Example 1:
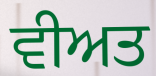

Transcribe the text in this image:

ਵੀਅਤ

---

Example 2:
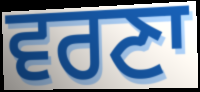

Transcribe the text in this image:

ਵਰਣਾ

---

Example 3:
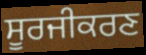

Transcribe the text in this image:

ਸੂਰਜੀਕਰਣ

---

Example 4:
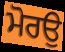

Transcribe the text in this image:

ਮੋਰਉ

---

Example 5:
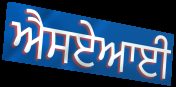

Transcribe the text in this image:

ਐਸਏਆਈ